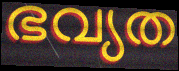
ഭവ്യത